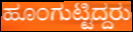
ಹೂಂಗುಟ್ಟಿದ್ದರು